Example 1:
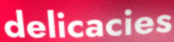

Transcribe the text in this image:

delicacies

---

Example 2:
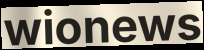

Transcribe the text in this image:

wionews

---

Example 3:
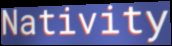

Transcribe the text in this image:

Nativity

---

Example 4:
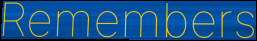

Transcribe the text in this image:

Remembers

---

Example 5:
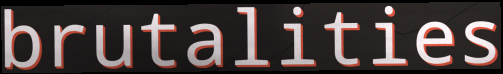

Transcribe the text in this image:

brutalities